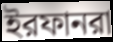
ইরফানরা